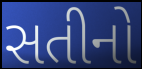
સતીનો